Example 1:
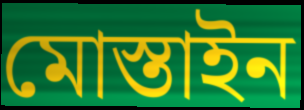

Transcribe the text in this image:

মোস্তাইন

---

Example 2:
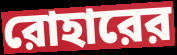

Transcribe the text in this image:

রোহারের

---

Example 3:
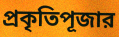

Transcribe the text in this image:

প্রকৃতিপূজার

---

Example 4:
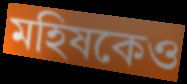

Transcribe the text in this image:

মহিষকেও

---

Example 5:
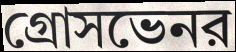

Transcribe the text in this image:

গ্রোসভেনর